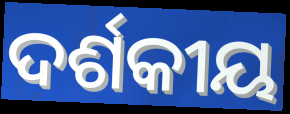
ଦର୍ଶକୀୟ